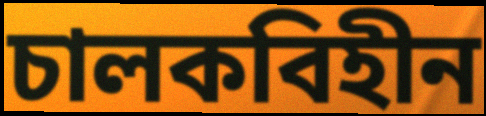
চালকবিহীন